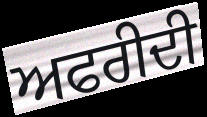
ਅਫਰੀਦੀ